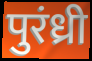
पुरंध्री